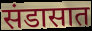
संडासात